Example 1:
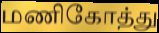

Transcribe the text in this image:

மணிகோத்து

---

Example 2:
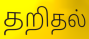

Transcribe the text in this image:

தறிதல்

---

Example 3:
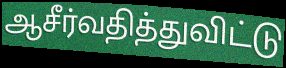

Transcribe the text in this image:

ஆசீர்வதித்துவிட்டு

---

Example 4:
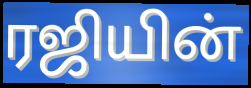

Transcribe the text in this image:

ரஜியின்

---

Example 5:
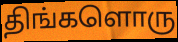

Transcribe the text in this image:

திங்களொரு